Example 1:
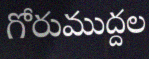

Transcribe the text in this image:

గోరుముద్దల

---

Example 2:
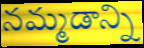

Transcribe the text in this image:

నమ్మడాన్ని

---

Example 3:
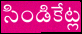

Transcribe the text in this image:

సిండికేట్ల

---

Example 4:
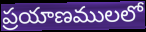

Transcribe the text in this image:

ప్రయాణములలో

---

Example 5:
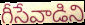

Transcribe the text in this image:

గీసేవాడిని